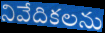
నివేదికలను